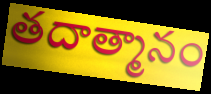
తదాత్మానం